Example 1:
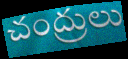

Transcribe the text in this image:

చంద్రులు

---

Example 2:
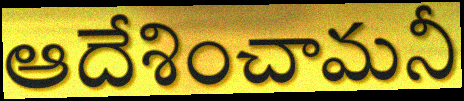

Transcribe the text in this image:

ఆదేశించామనీ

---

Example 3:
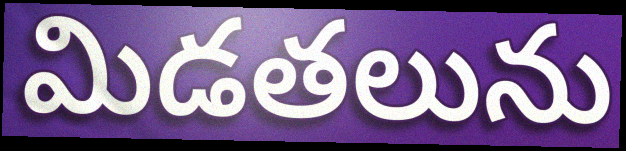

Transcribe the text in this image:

మిడతలును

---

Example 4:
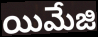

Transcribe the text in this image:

యిమేజి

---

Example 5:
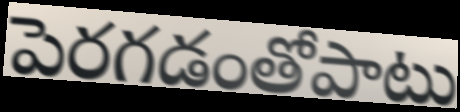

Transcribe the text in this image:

పెరగడంతోపాటు